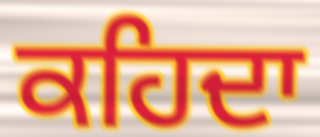
ਕਹਿਦਾ